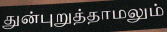
துன்புறுத்தாமலும்